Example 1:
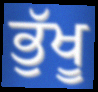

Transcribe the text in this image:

ਭੁੱਖੂ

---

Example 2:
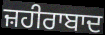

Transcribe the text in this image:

ਜ਼ਹੀਰਾਬਾਦ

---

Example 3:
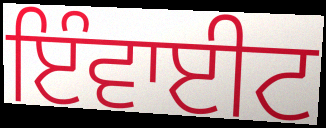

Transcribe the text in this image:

ਇੰਵਾਈਟ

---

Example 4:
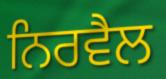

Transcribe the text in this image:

ਨਿਰਵੈਲ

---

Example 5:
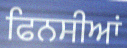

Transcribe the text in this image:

ਫਿਨਸੀਆਂ